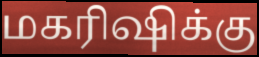
மகரிஷிக்கு